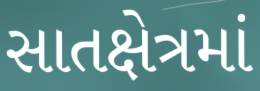
સાતક્ષેત્રમાં